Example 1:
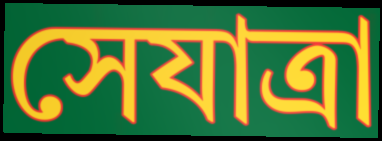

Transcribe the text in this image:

সেযাত্রা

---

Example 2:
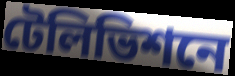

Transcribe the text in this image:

টেলিভিশনে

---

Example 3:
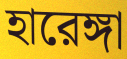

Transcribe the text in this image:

হারেঙ্গা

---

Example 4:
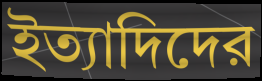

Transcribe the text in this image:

ইত্যাদিদের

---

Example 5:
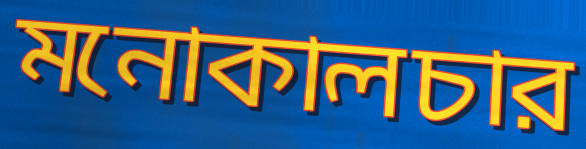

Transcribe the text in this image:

মনোকালচার